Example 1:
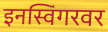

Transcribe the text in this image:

इनस्विंगरवर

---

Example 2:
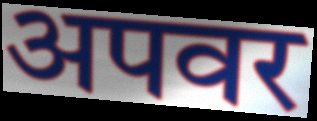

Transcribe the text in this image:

अपवर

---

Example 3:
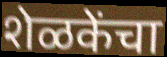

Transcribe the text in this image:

शेळकेंचा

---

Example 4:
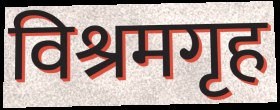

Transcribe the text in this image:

विश्रमगृह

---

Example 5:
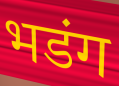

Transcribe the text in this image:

भडंग